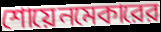
শোয়েনমেকারের